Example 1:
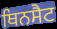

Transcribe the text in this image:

ਥਿਨਸੈਟ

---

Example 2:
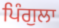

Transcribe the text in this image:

ਪਿੰਗੁਲਾ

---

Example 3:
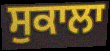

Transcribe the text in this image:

ਸੁਕਾਲਾ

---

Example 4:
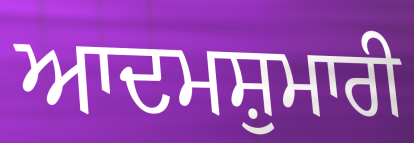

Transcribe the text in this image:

ਆਦਮਸ਼ੁਮਾਰੀ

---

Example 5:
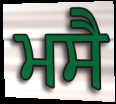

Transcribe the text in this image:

ਮਸੈ